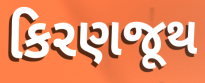
કિરણજૂથ